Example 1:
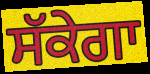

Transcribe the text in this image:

ਸੱਕੇਗਾ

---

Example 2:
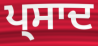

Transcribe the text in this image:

ਪ੍ਸਾਦ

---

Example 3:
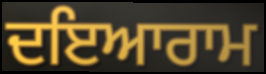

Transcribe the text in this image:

ਦਇਆਰਾਮ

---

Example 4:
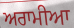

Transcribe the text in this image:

ਅਰਾਮੀਆ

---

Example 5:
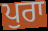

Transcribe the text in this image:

ਪੁਰਾ